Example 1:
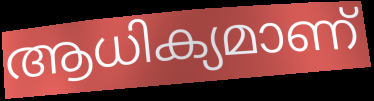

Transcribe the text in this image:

ആധിക്യമാണ്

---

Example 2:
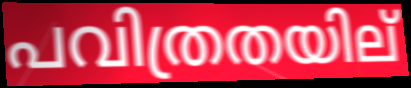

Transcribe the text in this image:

പവിത്രതയില്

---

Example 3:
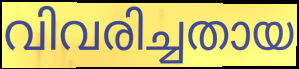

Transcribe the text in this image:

വിവരിച്ചതായ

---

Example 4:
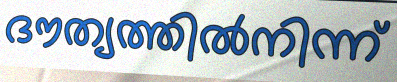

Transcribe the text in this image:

ദൗത്യത്തിൽനിന്ന്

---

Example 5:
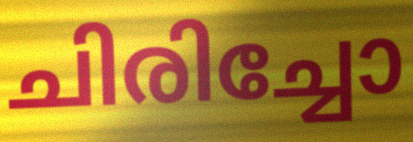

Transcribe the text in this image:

ചിരിച്ചോ